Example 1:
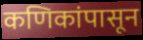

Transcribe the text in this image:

कणिकांपासून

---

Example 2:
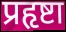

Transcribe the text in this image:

प्रहृष्टा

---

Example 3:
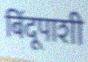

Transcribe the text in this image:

बिंदूपाशी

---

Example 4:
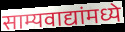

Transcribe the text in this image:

साम्यवाद्यांमध्ये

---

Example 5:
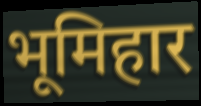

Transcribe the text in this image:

भूमिहार